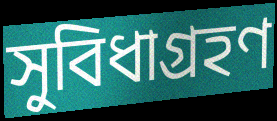
সুবিধাগ্রহণ